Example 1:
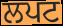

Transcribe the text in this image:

ਲਪਟ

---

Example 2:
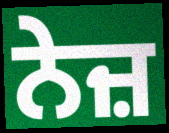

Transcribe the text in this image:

ਨੇਜ਼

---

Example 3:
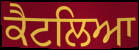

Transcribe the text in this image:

ਕੈਟਲਿਆ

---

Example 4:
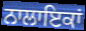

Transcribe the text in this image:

ਨਾਲਾਇਕਾਂ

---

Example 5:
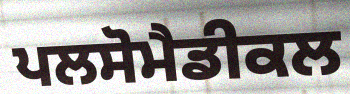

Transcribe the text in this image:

ਪਲਸੋਮੈਡੀਕਲ